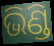
ଭିଣ୍ଡି